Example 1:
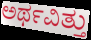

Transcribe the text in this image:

ಅರ್ಥವಿತ್ತು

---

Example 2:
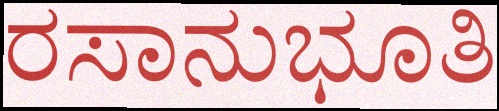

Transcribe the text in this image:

ರಸಾನುಭೂತಿ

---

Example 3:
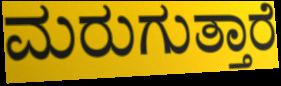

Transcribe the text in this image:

ಮರುಗುತ್ತಾರೆ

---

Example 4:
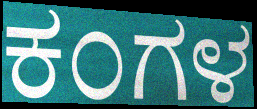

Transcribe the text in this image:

ಕಂಗಳ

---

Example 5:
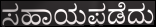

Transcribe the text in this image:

ಸಹಾಯಪಡೆದು